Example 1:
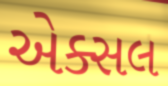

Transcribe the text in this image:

એક્સલ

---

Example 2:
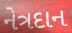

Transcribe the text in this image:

નેત્રદાન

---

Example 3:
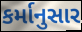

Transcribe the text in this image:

કર્માનુસાર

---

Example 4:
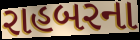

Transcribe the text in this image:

રાહબરના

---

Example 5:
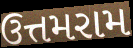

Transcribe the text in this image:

ઉત્તમરામ